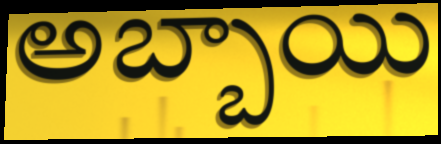
అబ్బాయి